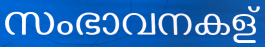
സംഭാവനകള്